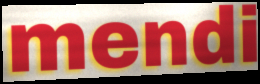
mendi